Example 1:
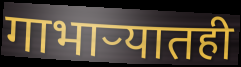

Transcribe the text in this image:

गाभाऱ्यातही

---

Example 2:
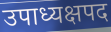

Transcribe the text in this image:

उपाध्यक्षपद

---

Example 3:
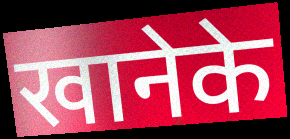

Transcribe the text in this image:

खानेके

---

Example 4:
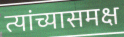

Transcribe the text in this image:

त्यांच्यासमक्ष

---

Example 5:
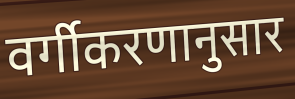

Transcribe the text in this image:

वर्गीकरणानुसार